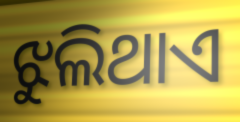
ଝୁଲିଥାଏ